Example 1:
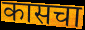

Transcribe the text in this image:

कासचा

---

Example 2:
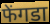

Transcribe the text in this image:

फेंगडा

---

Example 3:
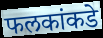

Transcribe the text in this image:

फलकांकडे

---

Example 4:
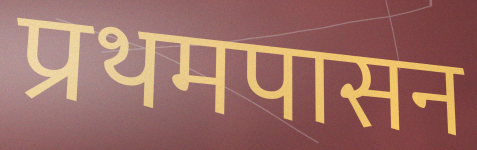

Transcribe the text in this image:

प्रथमपासन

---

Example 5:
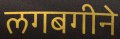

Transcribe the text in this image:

लगबगीने